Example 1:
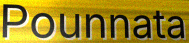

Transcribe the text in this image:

Pounnata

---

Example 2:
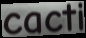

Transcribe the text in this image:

cacti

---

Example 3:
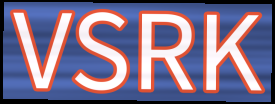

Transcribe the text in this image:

VSRK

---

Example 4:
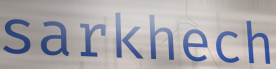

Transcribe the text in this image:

sarkhech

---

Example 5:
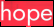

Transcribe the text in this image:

hope